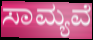
ಸಾಮ್ಯವೆ